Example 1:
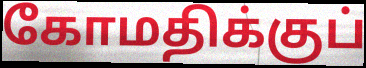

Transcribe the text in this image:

கோமதிக்குப்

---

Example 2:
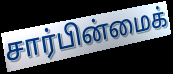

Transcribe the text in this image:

சார்பின்மைக்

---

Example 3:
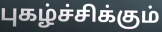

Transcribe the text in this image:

புகழ்ச்சிக்கும்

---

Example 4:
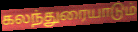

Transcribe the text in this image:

கலந்துரையாடும்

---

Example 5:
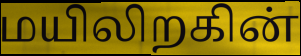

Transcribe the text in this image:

மயிலிறகின்